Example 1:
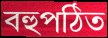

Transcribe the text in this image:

বহুপঠিত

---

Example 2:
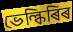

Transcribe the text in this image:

ভেল্কিৰিৰ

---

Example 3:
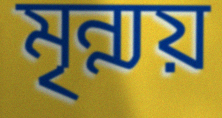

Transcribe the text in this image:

মৃন্ময়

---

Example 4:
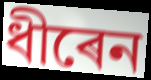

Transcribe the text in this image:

ধীৰেন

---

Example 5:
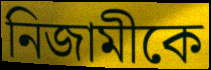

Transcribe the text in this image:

নিজামীকে